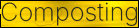
Composting